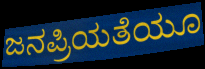
ಜನಪ್ರಿಯತೆಯೂ